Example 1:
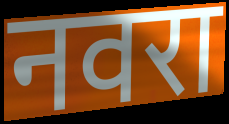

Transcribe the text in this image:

नवरा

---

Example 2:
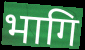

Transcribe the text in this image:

भागि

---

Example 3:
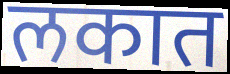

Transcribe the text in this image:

लकात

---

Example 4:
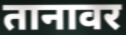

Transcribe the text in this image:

तानावर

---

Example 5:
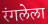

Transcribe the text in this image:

रंगलेला